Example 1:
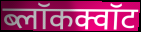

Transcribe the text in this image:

ब्लॉकक्वॉट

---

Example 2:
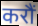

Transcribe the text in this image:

करौं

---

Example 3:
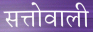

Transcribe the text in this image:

सत्तोवाली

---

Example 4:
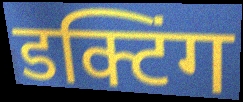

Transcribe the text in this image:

डक्टिंग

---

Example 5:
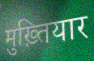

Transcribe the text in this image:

मुख़्तियार